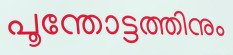
പൂന്തോട്ടത്തിനും